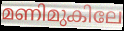
മണിമുകിലേ